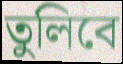
তুলিবে